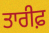
ਤਾਰੀਫ਼